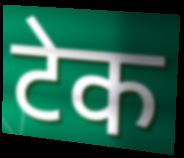
टेक